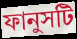
ফানুসটি